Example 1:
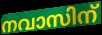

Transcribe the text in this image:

നവാസിന്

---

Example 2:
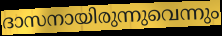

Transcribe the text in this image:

ദാസനായിരുന്നുവെന്നും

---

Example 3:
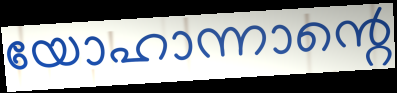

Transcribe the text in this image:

യോഹാന്നാന്റെ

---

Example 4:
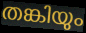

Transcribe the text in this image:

തങ്കിയും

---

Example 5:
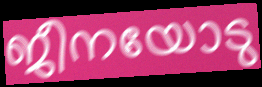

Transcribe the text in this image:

ജീനയോടു